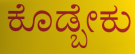
ಕೊಡ್ಬೇಕು